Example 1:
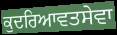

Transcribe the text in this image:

ਕੁਦਰਿਆਵਤਸੇਵਾ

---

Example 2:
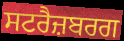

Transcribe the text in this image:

ਸਟਰੈਜ਼ਬਰਗ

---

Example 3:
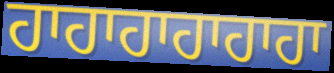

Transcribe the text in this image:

ਹਾਹਾਹਾਹਾਹਾਹਾ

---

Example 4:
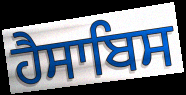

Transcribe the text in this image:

ਹੈਸਾਬਿਸ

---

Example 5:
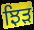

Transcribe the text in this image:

ਝਿੜ